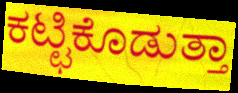
ಕಟ್ಟಿಕೊಡುತ್ತಾ